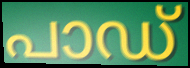
പാഡ്